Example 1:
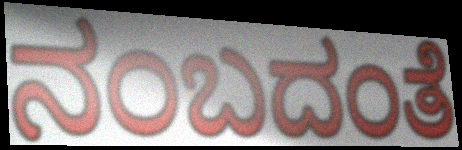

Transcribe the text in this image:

ನಂಬದಂತೆ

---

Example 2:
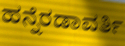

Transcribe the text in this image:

ಹನ್ನೆರಡಾವರ್ತಿ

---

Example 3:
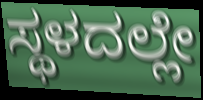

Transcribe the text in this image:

ಸ್ಥಳದಲ್ಲೇ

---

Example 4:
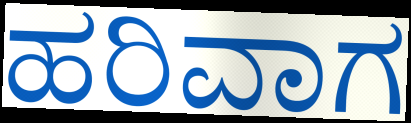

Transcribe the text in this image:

ಹರಿವಾಗ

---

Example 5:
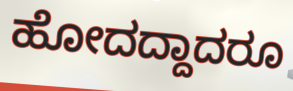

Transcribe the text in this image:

ಹೋದದ್ದಾದರೂ